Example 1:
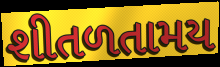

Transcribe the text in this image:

શીતળતામય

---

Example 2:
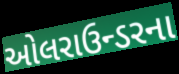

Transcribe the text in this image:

ઓલરાઉન્ડરના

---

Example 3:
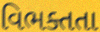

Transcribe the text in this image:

વિભક્તતા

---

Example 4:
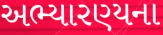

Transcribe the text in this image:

અભ્યારણ્યના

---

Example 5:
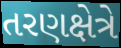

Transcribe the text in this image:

તરણક્ષેત્રે